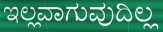
ಇಲ್ಲವಾಗುವುದಿಲ್ಲ